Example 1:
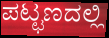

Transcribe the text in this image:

ಪಟ್ಟಣದಲ್ಲಿ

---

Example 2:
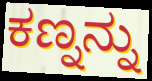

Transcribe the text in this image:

ಕಣ್ನನ್ನು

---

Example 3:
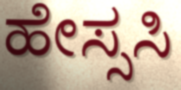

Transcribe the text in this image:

ಹೇಸ್ಸಸಿ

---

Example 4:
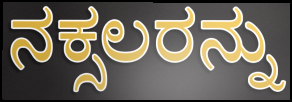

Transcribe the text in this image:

ನಕ್ಸಲರನ್ನು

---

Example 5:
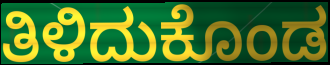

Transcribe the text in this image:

ತಿಳಿದುಕೊಂಡ